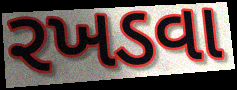
રખડવા